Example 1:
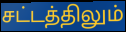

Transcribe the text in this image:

சட்டத்திலும்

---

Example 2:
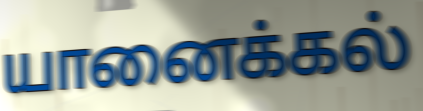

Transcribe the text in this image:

யானைக்கல்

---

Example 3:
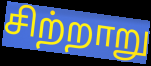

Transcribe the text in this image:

சிற்றாறு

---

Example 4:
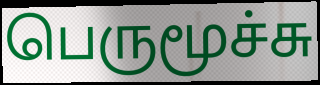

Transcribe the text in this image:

பெருமூச்சு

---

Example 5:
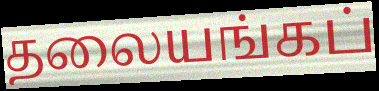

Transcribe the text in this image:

தலையங்கப்